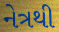
નેત્રથી